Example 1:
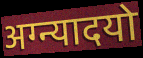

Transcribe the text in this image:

अग्न्यादयो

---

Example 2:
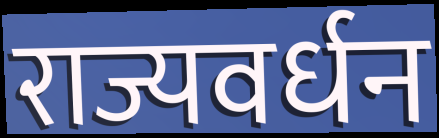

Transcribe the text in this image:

राज्यवर्धन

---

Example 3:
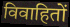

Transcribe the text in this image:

विवाहितों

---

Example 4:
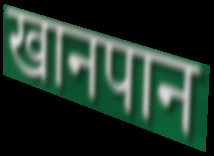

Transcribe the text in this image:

खानपान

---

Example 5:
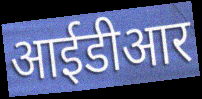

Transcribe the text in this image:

आईडीआर